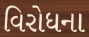
વિરોધના